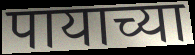
पायाच्या